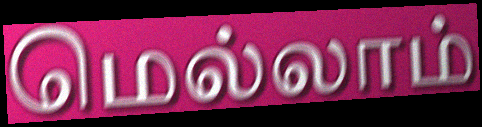
மெல்லாம்